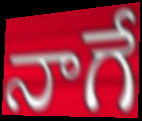
నాగే